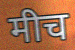
मीच